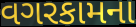
વગરકામના